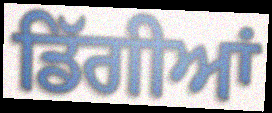
ਡਿੱਗੀਆਂ